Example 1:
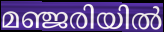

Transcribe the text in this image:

മഞ്ജരിയിൽ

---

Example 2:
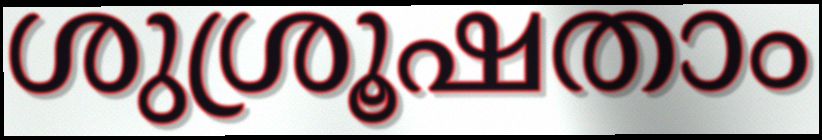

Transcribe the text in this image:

ശുശ്രൂഷതാം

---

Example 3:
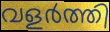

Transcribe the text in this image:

വളർത്തി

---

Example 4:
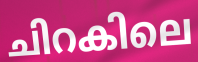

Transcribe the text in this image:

ചിറകിലെ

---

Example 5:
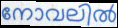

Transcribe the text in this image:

നോവലിൽ